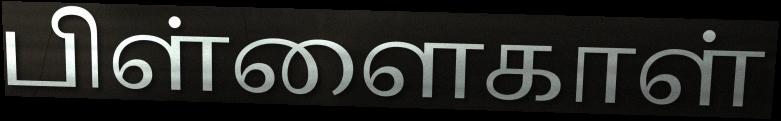
பிள்ளைகாள்